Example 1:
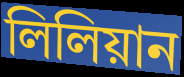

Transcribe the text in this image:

লিলিয়ান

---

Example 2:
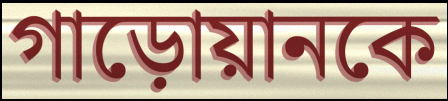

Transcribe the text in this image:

গাড়োয়ানকে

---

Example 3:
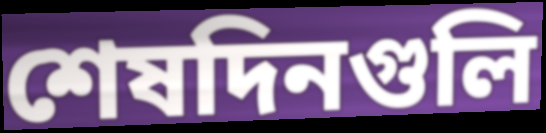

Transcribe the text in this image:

শেষদিনগুলি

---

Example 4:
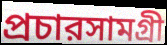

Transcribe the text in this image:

প্রচারসামগ্রী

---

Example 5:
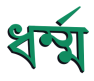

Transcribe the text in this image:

ধর্ম্ম